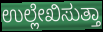
ಉಲ್ಲೇಖಿಸುತ್ತಾ